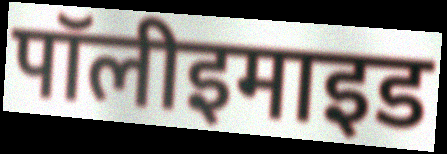
पॉलीइमाइड